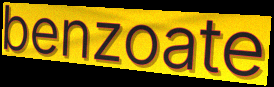
benzoate